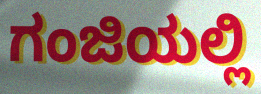
ಗಂಜಿಯಲ್ಲಿ